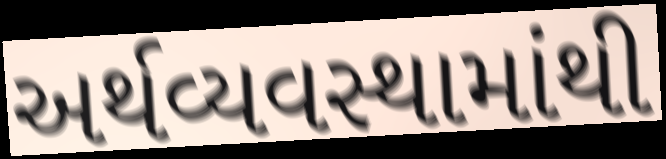
અર્થવ્યવસ્થામાંથી